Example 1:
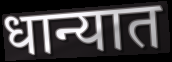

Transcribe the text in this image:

धान्यात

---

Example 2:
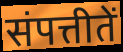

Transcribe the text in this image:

संपत्तीतें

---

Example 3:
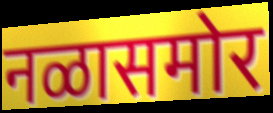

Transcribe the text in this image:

नळासमोर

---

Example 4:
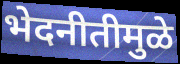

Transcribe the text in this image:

भेदनीतीमुळे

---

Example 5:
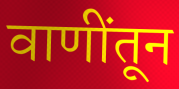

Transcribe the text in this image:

वाणींतून